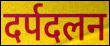
दर्पदलन